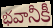
భవానీకీ